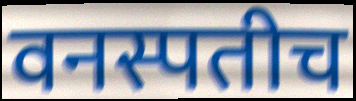
वनस्पतीच